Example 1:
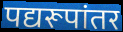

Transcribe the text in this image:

पद्यरूपांतर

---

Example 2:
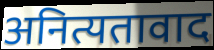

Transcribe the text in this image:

अनित्यतावाद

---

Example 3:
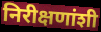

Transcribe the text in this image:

निरीक्षणांशी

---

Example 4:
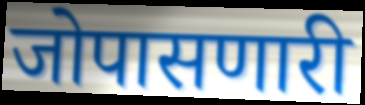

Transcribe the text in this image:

जोपासणारी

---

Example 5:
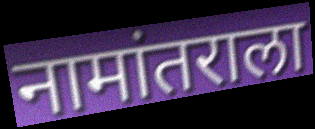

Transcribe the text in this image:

नामांतराला